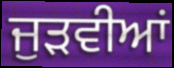
ਜੁੜਵੀਆਂ